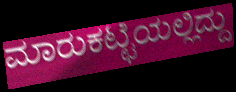
ಮಾರುಕಟ್ಟೆಯಲ್ಲಿದ್ದು